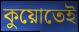
কুয়োতেই